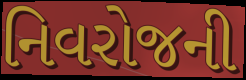
નિવરોજની